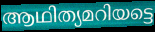
ആഥിത്യമറിയട്ടെ